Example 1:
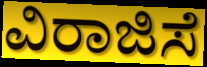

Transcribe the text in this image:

ವಿರಾಜಿಸೆ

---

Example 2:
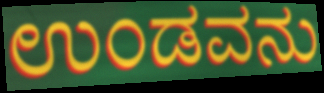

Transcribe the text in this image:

ಉಂಡವನು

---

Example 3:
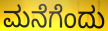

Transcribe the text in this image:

ಮನೆಗೆಂದು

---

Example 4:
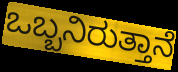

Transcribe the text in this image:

ಒಬ್ಬನಿರುತ್ತಾನೆ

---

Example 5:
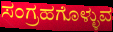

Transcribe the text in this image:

ಸಂಗ್ರಹಗೊಳ್ಳುವ